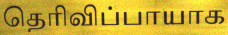
தெரிவிப்பாயாக